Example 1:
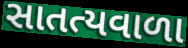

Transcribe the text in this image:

સાતત્યવાળા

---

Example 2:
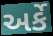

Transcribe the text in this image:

અર્કે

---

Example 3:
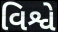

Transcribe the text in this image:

વિશ્વે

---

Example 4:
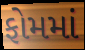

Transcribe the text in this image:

ફોમમાં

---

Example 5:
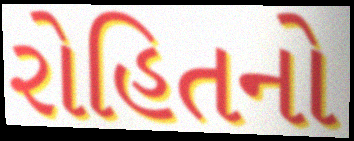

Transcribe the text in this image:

રોહિતનો